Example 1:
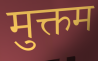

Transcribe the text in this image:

मुक्तम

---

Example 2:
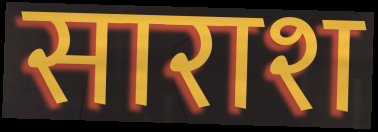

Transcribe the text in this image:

साराश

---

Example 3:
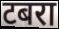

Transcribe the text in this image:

टबरा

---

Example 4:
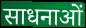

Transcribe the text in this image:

साधनाओं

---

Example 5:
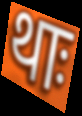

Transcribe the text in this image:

थाः